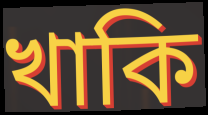
খাকি